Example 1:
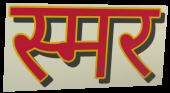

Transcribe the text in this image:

स्मर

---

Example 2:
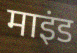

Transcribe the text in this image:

माइंड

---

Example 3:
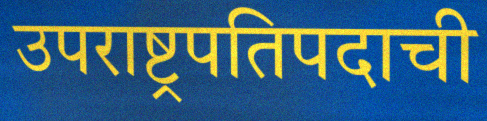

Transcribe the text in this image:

उपराष्ट्रपतिपदाची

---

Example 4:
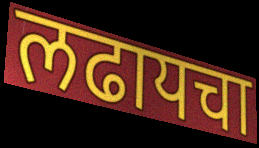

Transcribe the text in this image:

लढायचा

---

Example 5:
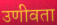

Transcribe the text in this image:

उणीवता